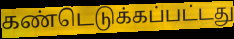
கண்டெடுக்கப்பட்டது